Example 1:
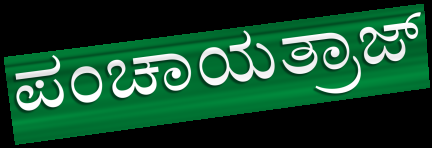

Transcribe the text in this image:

ಪಂಚಾಯತ್ರಾಜ್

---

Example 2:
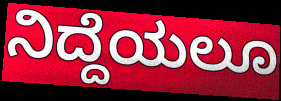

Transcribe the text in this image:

ನಿದ್ದೆಯಲೂ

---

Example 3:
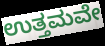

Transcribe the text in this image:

ಉತ್ತಮವೇ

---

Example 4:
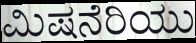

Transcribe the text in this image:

ಮಿಷನೆರಿಯು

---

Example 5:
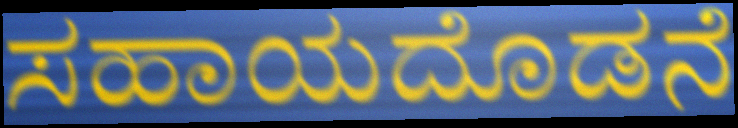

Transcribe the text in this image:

ಸಹಾಯದೊಡನೆ